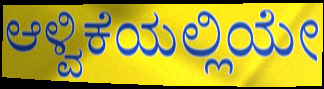
ಆಳ್ವಿಕೆಯಲ್ಲಿಯೇ